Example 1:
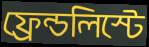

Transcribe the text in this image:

ফ্রেন্ডলিস্টে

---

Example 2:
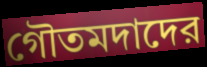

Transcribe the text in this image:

গৌতমদাদের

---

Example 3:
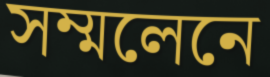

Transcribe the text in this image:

সম্মলেনে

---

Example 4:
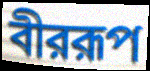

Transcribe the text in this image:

বীররূপ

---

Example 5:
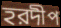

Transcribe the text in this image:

হরদীপ